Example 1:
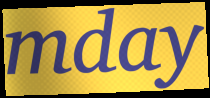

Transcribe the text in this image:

mday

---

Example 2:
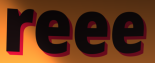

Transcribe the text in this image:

reee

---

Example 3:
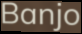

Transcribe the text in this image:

Banjo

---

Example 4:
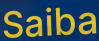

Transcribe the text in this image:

Saiba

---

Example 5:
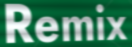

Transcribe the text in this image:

Remix